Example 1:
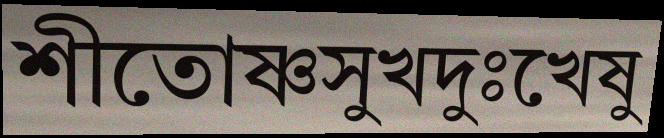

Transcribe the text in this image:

শীতোষ্ণসুখদুঃখেষু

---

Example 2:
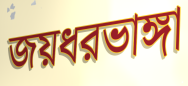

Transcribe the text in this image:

জয়ধরভাঙ্গা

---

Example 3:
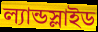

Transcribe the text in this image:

ল্যান্ডস্লাইড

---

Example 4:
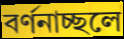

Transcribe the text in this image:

বর্ণনাচ্ছলে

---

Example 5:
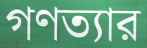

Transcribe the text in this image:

গণত্যার